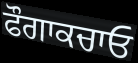
ਫੌਗਾਕਚਾਓ